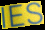
IES